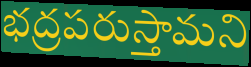
భద్రపరుస్తామని